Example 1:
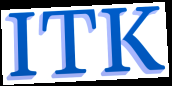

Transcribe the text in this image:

ITK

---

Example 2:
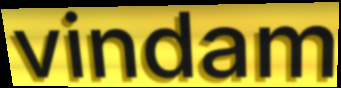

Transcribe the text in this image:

vindam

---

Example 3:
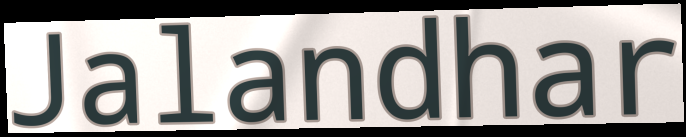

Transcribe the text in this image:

Jalandhar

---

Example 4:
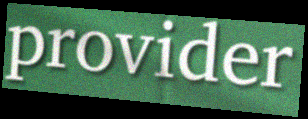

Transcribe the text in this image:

provider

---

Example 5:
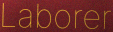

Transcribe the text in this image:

Laborer